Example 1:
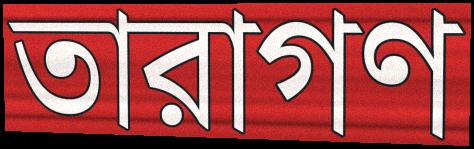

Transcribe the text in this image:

তারাগণ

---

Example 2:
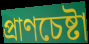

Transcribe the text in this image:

প্রাণচেষ্টা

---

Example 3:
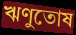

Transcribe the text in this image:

ঋণুতোষ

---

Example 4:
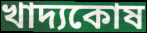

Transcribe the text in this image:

খাদ্যকোষ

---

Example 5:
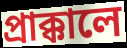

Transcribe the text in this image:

প্রাক্কালে